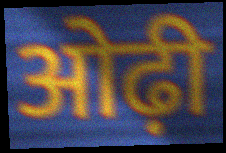
ओढ़ी